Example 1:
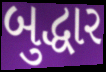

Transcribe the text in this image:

બુદ્ધાર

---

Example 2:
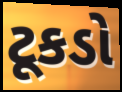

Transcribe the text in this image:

ટૂકડો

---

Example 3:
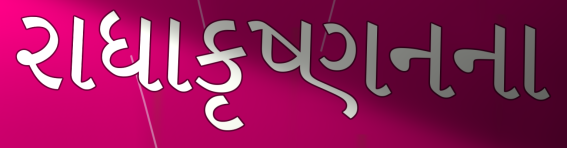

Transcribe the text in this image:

રાધાકૃષ્ણનના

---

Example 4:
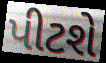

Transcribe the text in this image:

પીટશે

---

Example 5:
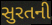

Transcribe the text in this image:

સુરતની